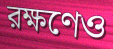
রক্ষণেও